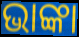
ଭାଙ୍କା